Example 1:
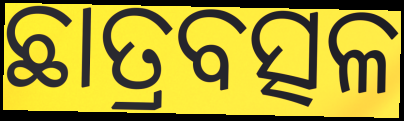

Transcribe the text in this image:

ଛାତ୍ରବତ୍ସଳ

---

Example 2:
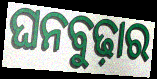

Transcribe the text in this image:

ଘନବୁଢ଼ାର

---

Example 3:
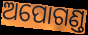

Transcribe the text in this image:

ଅପୋଗଣ୍ଡ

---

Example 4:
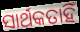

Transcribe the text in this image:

ସାର୍ଥକତାହିଁ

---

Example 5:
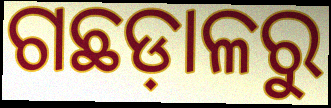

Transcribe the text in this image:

ଗଛଡ଼ାଳରୁ